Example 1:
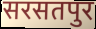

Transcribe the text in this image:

सरसतपुर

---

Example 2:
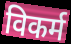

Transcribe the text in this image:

विकर्म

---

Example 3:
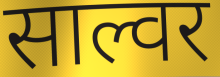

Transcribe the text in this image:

साल्वर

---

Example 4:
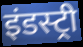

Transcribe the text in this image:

इंडस्‍ट्री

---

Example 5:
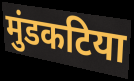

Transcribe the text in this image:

मुंडकटिया